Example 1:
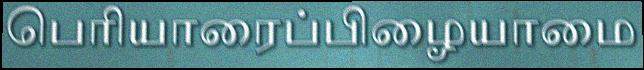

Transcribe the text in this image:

பெரியாரைப்பிழையாமை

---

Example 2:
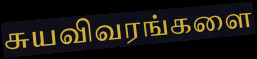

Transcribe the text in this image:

சுயவிவரங்களை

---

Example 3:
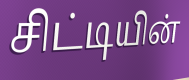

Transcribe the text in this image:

சிட்டியின்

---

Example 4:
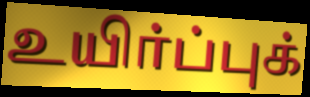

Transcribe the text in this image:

உயிர்ப்புக்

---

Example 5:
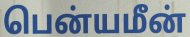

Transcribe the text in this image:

பென்யமீன்